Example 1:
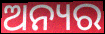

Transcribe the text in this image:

ଅନ୍ୟର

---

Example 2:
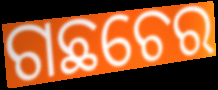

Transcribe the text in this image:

ଗଛଚେର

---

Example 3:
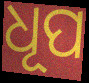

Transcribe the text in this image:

ଧୂପ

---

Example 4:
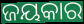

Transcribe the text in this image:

ଜୟକାର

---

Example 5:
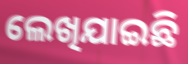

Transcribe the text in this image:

ଲେଖିଯାଇଛି